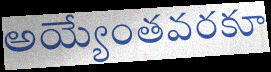
అయ్యేంతవరకూ